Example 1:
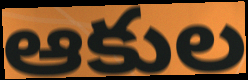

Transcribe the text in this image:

ఆకుల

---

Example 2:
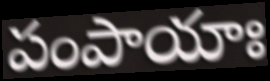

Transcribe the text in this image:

పంపాయాః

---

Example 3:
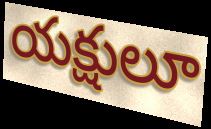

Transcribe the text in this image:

యక్షులూ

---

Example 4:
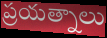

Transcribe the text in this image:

ప్రయత్నాలు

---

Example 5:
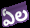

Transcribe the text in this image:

ఏల